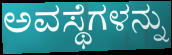
ಅವಸ್ಥೆಗಳನ್ನು